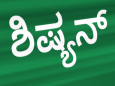
ಶಿಷ್ಯನ್